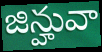
జిన్హువా